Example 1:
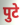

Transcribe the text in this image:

पुटे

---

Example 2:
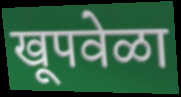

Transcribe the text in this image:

खूपवेळा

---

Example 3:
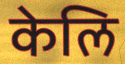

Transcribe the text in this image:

केलि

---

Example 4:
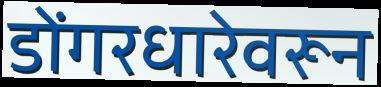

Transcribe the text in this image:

डोंगरधारेवरून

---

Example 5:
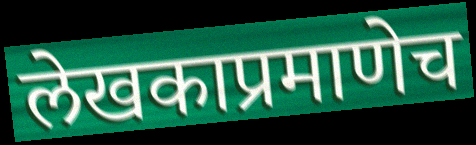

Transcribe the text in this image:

लेखकाप्रमाणेच